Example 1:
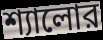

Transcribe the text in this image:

শ্যালোর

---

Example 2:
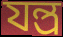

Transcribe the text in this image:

যন্ত্র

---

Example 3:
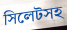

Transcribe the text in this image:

সিলেটসহ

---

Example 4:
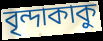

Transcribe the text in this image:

বৃন্দাকাকু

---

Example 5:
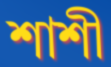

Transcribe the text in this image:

শাশী